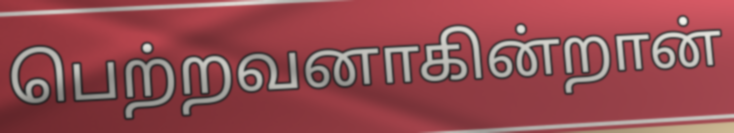
பெற்றவனாகின்றான்